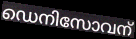
ഡെനിസോവന്